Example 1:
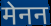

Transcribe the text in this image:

मेनन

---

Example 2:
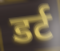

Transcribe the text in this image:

डर्ट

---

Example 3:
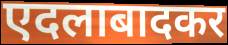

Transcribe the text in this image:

एदलाबादकर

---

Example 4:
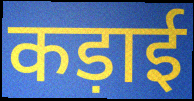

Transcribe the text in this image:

कड़ाई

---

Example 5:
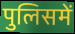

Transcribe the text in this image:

पुलिसमें